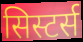
सिस्टर्स